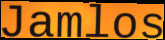
Jamlos